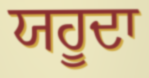
ਯਹੂਦਾ